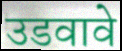
उडवावे